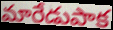
మారేడుపాక